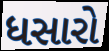
ધસારો